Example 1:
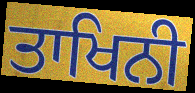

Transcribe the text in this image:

ਤਾਖਿਨੀ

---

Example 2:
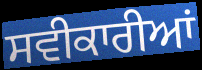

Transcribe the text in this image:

ਸਵੀਕਾਰੀਆਂ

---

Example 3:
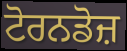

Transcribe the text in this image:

ਟੋਰਨਡੋਜ਼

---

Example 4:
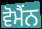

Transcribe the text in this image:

ਵੋਮੈਂਨ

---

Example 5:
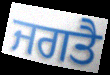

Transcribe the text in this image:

ਜਗਤੈ